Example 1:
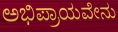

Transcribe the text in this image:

ಅಭಿಪ್ರಾಯವೇನು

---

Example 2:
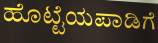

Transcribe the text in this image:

ಹೊಟ್ಟೆಯಪಾಡಿಗೆ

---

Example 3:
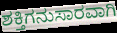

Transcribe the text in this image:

ಶಕ್ತಿಗನುಸಾರವಾಗಿ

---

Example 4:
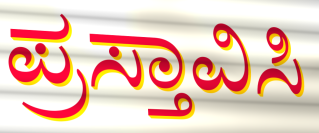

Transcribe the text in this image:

ಪ್ರಸ್ತಾವಿಸಿ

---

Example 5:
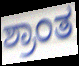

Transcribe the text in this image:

ಶ್ರಾಂತ